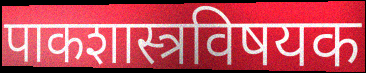
पाकशास्त्रविषयक